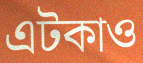
এটকাও